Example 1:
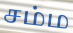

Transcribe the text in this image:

சம்ம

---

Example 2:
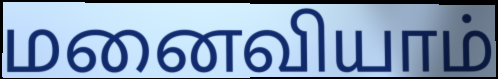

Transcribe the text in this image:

மனைவியாம்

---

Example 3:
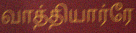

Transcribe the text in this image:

வாத்தியார்ரே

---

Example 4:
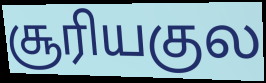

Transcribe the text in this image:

சூரியகுல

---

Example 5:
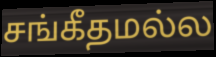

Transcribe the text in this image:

சங்கீதமல்ல